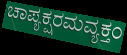
ಚಾಪ್ಯಕ್ಷರಮವ್ಯಕ್ತಂ